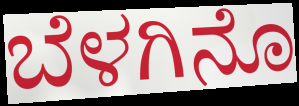
ಬೆಳಗಿನೊ